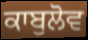
ਕਾਬੁਲੋਵ